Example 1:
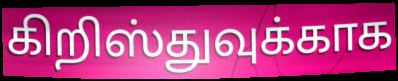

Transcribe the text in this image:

கிறிஸ்துவுக்காக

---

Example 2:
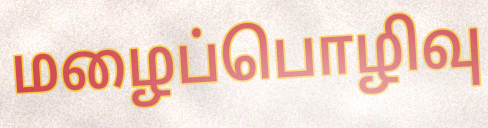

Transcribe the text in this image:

மழைப்பொழிவு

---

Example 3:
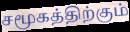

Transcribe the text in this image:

சமூகத்திற்கும்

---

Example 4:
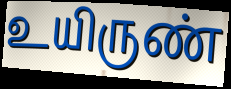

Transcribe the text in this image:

உயிருண்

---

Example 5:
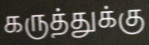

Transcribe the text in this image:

கருத்துக்கு